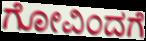
ಗೋವಿಂದಗೆ